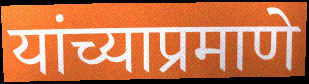
यांच्याप्रमाणे